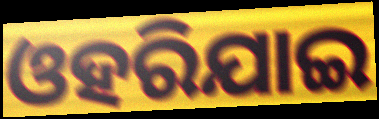
ଓହରିଯାଇ